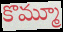
కొమ్మూ